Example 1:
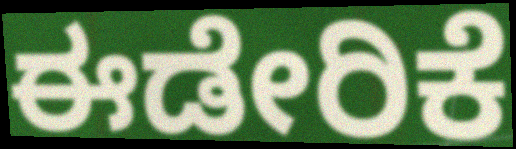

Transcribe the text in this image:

ಈಡೇರಿಕೆ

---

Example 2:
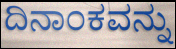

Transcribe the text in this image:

ದಿನಾಂಕವನ್ನು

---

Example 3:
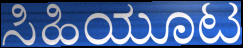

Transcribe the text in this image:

ಸಿಹಿಯೂಟ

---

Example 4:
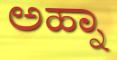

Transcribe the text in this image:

ಅಹ್ನಾ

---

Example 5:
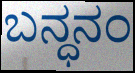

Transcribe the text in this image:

ಬನ್ಧನಂ